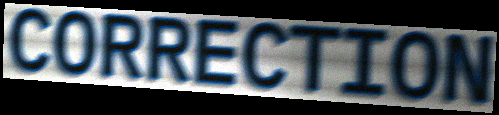
CORRECTION